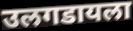
उलगडायला